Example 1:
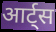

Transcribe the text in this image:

आर्ट्स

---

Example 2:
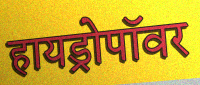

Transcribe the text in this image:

हायड्रोपॉवर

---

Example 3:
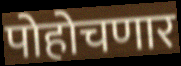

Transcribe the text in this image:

पोहोचणार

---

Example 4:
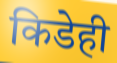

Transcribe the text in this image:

किडेही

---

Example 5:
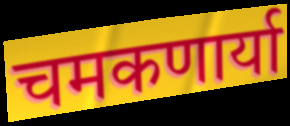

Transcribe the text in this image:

चमकणार्या